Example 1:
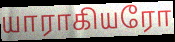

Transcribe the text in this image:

யாராகியரோ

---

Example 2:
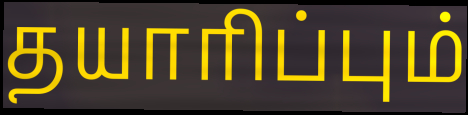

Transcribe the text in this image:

தயாரிப்பும்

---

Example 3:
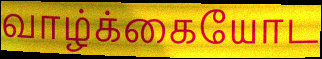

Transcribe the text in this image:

வாழ்க்கையோட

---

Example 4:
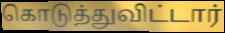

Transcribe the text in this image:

கொடுத்துவிட்டார்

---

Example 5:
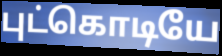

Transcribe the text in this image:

புட்கொடியே